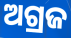
ଅଗ୍ରଜ